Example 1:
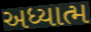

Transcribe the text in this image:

અધ્યાત્મ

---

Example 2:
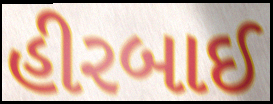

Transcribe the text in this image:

હીરબાઈ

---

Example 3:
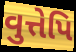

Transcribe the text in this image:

વુત્તેપિ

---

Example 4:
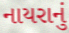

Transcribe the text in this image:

નાયરાનું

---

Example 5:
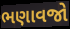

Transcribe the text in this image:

ભણાવજો